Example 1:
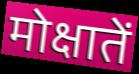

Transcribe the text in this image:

मोक्षातें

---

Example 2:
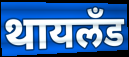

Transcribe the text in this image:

थायलँड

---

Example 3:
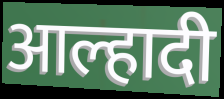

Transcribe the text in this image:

आल्हादी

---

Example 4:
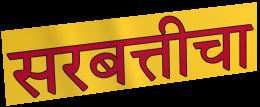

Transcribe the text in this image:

सरबत्तीचा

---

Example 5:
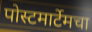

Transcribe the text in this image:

पोस्टमार्टेमचा